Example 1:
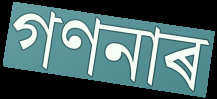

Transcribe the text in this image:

গণনাৰ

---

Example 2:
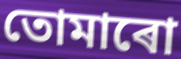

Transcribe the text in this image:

তোমাৰো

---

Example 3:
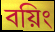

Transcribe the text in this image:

বয়িং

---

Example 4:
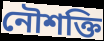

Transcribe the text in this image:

নৌশক্তি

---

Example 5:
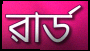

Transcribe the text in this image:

ৱাৰ্ড